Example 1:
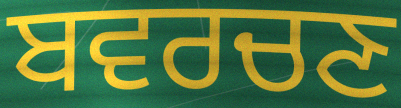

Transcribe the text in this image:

ਬਵਰਚਣ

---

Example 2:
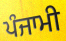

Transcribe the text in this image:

ਪੰਜਾਮੀ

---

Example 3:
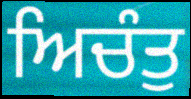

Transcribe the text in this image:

ਅਿਚੰਤੁ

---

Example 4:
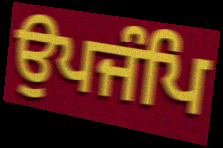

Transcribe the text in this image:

ਉਪਜੰਪਿ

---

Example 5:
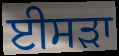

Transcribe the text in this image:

ਈਸੜਾ